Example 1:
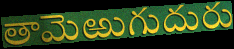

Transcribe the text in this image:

తామెఱుగుదురు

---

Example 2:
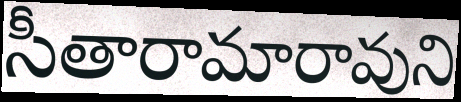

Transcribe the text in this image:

సీతారామారావుని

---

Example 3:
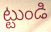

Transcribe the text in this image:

ట్టుండి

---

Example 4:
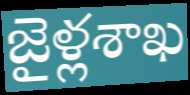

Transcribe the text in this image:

జైళ్లశాఖ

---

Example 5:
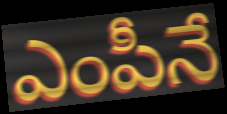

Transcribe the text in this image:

ఎంపీనే